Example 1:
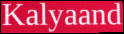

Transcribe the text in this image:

Kalyaand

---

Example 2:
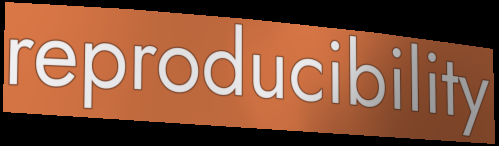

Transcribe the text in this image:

reproducibility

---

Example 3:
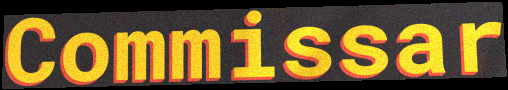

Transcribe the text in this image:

Commissar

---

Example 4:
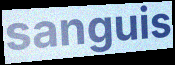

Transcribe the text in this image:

sanguis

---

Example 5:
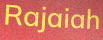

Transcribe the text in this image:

Rajaiah